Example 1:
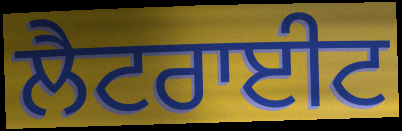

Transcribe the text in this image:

ਲੈਟਰਾਈਟ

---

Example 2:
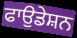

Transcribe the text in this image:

ਫਾਉਡੇਸ਼ਨ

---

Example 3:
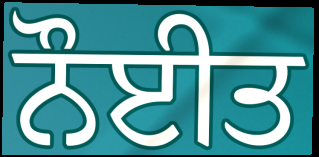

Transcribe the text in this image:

ਨੌਈਤ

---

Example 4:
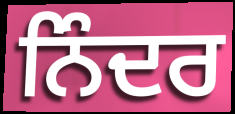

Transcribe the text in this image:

ਨਿੰਦਰ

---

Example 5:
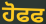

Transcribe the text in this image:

ਹੋਫਫ